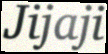
Jijaji